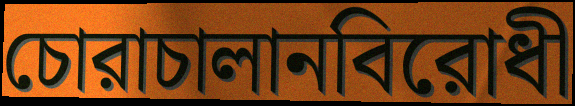
চোরাচালানবিরোধী